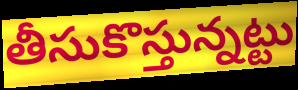
తీసుకొస్తున్నట్టు